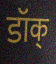
डॉक्